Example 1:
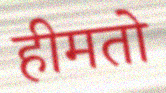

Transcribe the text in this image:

हीमतो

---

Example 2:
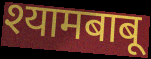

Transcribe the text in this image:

श्यामबाबू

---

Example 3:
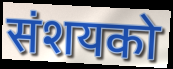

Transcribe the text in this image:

संशयको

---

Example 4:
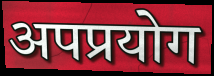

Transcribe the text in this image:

अपप्रयोग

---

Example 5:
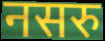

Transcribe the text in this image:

नसरु